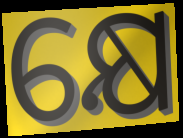
କ୍ଷେ